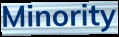
Minority